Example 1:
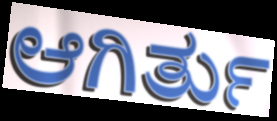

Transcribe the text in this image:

ಆಗಿರ್ತು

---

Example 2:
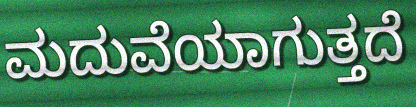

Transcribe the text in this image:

ಮದುವೆಯಾಗುತ್ತದೆ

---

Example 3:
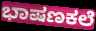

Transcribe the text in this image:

ಭಾಷಣಕಲೆ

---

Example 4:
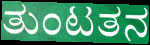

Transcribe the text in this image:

ತುಂಟತನ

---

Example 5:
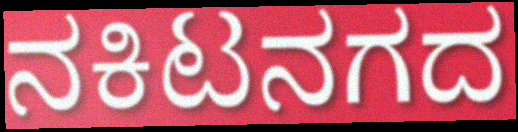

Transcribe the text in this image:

ನಕಿಟನಗದ